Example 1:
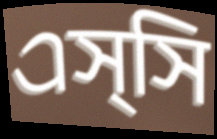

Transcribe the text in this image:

এস্‌সি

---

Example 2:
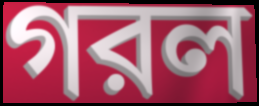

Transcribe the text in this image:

গরল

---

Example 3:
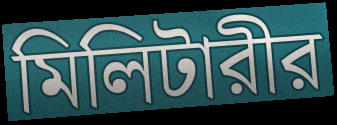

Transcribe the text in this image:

মিলিটারীর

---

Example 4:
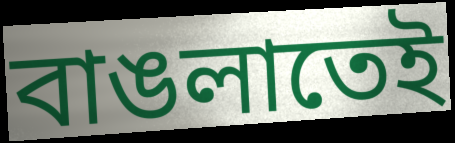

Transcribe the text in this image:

বাঙলাতেই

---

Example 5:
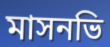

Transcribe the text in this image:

মাসনভি